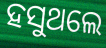
ହସୁଥଲେ